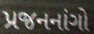
પ્રજનનાંગો